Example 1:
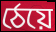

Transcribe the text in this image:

ঠেয়ে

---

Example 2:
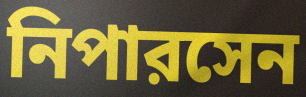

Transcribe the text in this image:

নিপারসেন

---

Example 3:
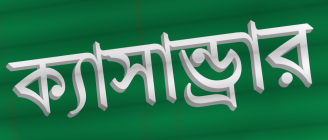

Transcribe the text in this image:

ক্যাসান্ড্রার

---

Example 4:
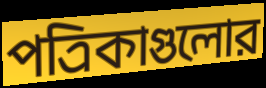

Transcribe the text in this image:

পত্রিকাগুলোর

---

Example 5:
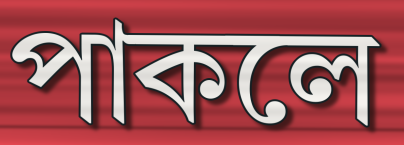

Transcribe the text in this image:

পাকলে